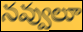
నవ్వులూ